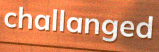
challanged